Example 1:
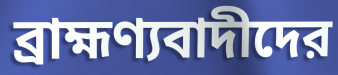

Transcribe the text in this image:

ব্রাহ্মণ্যবাদীদের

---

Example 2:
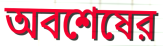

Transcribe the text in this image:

অবশেষের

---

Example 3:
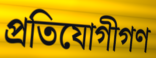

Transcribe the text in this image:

প্রতিযোগীগণ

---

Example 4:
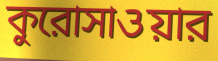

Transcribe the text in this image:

কুরোসাওয়ার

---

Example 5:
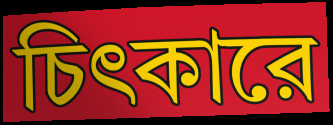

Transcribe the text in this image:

চিৎকারে